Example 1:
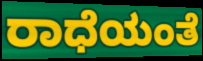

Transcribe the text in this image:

ರಾಧೆಯಂತೆ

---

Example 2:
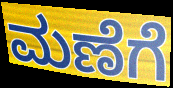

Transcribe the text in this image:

ಮಣೆಗೆ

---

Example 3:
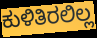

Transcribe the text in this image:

ಕುಳಿತಿರಲಿಲ್ಲ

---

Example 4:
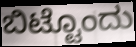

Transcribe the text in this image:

ಬಿಟ್ಟೊಂದು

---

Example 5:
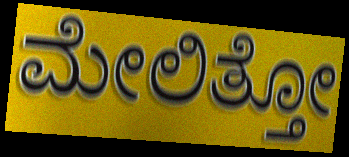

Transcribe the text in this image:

ಮೇಲಿತ್ತೋ